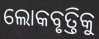
ଲୋକବୃତ୍ତିକୁ